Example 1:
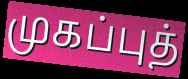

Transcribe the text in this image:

முகப்புத்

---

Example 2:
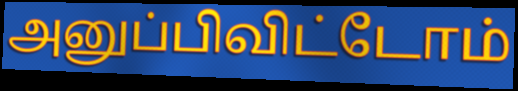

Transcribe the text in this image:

அனுப்பிவிட்டோம்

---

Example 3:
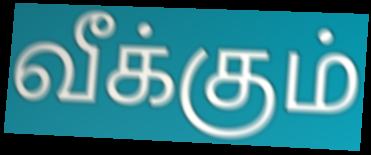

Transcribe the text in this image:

வீக்கும்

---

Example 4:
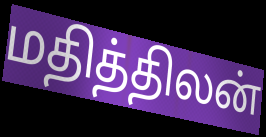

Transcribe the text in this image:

மதித்திலன்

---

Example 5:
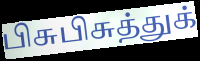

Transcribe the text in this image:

பிசுபிசுத்துக்